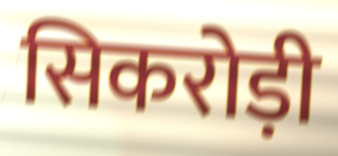
सिकरोड़ी